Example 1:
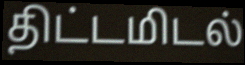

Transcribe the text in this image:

திட்டமிடல்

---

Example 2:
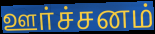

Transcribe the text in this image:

ஊர்ச்சனம்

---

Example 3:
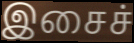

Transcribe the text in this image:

இசைச்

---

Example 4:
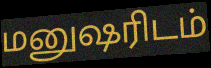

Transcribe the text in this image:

மனுஷரிடம்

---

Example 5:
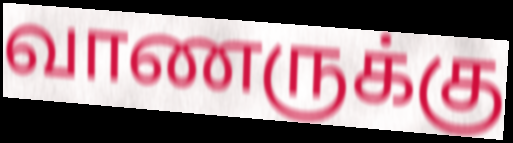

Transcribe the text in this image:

வாணருக்கு